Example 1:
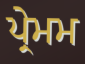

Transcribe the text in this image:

ਪ੍ਰੇਮਮ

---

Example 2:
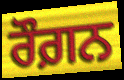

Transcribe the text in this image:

ਰੌਗ਼ਨ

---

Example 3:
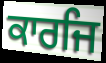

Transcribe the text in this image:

ਕਾਰਜਿ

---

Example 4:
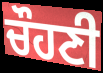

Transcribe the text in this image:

ਚੌਹਣੀ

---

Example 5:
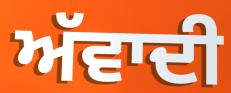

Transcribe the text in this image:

ਅੱਵਾਦੀ